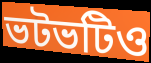
ভটভটিও